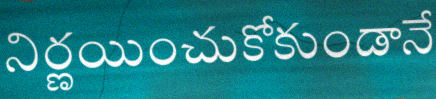
నిర్ణయించుకోకుండానే